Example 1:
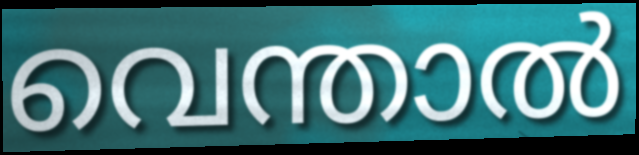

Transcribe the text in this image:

വെന്താൽ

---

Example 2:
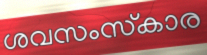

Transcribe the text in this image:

ശവസംസ്‌കാര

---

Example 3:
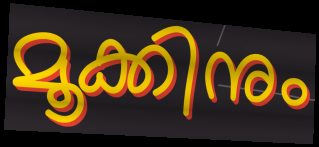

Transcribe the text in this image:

മൂക്കിനും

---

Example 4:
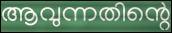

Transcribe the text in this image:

ആവുന്നതിന്റെ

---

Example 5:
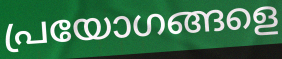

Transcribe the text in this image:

പ്രയോഗങ്ങളെ